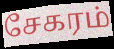
சேகரம்